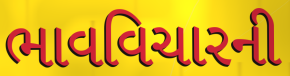
ભાવવિચારની